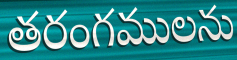
తరంగములను